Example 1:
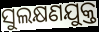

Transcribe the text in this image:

ସୁଲକ୍ଷଣଯୁକ୍ତ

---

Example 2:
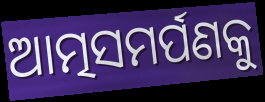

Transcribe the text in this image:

ଆତ୍ମସମର୍ପଣକୁ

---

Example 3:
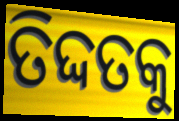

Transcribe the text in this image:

ତିଦ୍ଦତକୁ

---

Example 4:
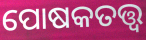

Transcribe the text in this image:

ପୋଷକତତ୍ତ୍ବ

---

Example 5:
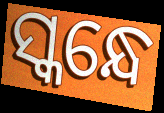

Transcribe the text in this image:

ସ୍କନ୍ଧେ